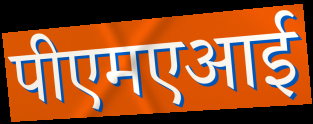
पीएमएआई